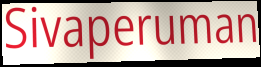
Sivaperuman